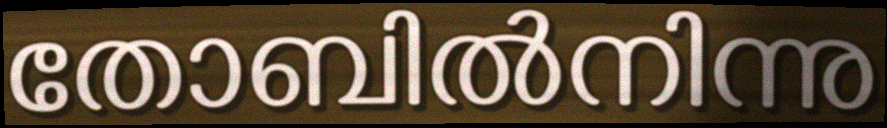
തോബിൽനിന്നു